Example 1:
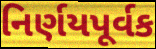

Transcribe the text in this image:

નિર્ણયપૂર્વક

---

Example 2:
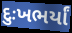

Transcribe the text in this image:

દુઃખભર્યાં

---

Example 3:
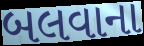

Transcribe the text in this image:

બલવાના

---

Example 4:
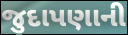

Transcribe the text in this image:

જુદાપણાની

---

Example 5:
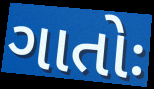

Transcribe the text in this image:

ગાતોઃ